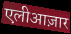
एलीआज़ार